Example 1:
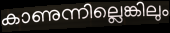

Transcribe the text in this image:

കാണുന്നില്ലെങ്കിലും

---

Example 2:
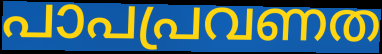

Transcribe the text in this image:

പാപപ്രവണത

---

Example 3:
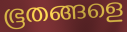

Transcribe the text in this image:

ഭൂതങ്ങളെ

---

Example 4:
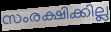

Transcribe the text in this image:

സംരക്ഷിക്കില്ല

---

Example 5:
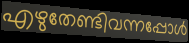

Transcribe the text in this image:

എഴുതേണ്ടിവന്നപ്പോൾ